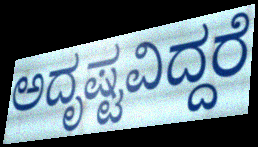
ಅದೃಷ್ಟವಿದ್ದರೆ